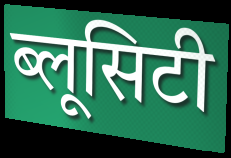
ब्लूसिटी